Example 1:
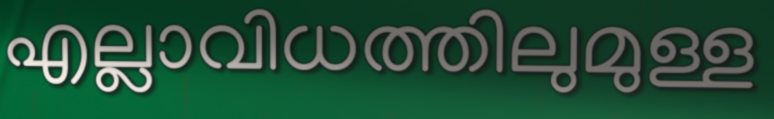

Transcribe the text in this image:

എല്ലാവിധത്തിലുമുള്ള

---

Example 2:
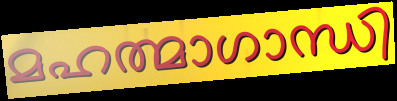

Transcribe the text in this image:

മഹത്മാഗാന്ധി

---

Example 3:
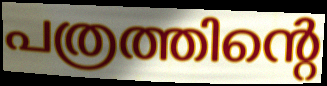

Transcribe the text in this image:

പത്രത്തിന്റെ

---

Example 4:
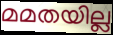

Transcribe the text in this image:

മമതയില്ല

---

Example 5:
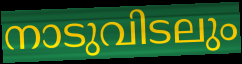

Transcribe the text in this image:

നാടുവിടലും